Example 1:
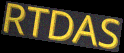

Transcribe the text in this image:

RTDAS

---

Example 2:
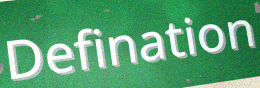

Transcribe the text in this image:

Defination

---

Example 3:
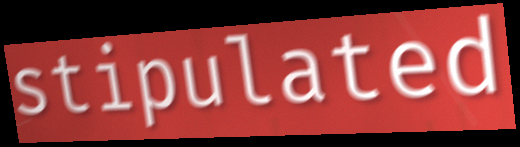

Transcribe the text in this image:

stipulated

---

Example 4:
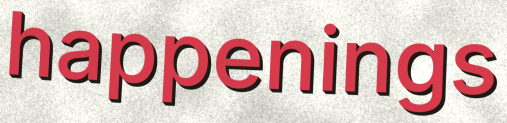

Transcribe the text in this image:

happenings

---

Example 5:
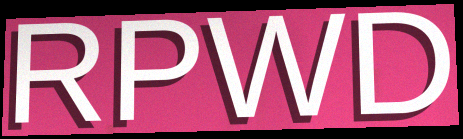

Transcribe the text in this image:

RPWD